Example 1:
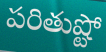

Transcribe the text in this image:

పరితుష్టో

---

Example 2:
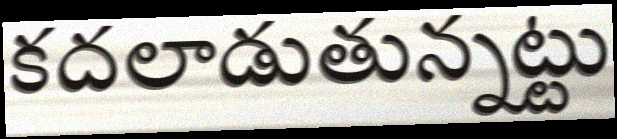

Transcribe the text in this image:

కదలాడుతున్నట్టు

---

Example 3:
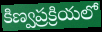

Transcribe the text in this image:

కిణ్వప్రక్రియలో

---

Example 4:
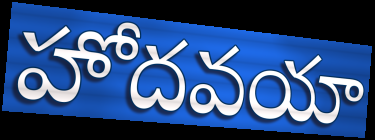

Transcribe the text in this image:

హోదవయా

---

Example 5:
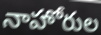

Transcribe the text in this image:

నాహోరుల